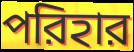
পরিহার